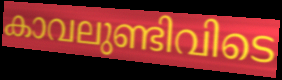
കാവലുണ്ടിവിടെ